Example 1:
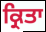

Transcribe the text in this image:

ਕ੍ਰਿਤਾ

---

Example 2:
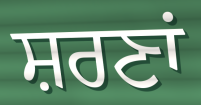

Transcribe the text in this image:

ਸ਼ਰਣਾਂ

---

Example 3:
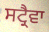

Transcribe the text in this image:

ਸਟ੍ਰੈਵਾ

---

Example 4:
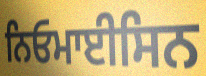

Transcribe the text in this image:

ਨਿਓਮਾਈਸਿਨ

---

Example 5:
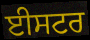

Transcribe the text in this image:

ਈਸਟਰ